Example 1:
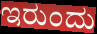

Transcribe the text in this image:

ಇರುಂದು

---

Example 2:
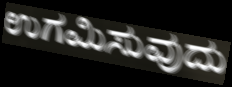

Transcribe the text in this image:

ಉಗಮಿಸುವುದು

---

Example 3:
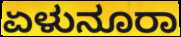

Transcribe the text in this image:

ಏಳುನೂರಾ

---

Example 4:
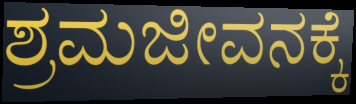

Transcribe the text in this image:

ಶ್ರಮಜೀವನಕ್ಕೆ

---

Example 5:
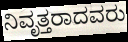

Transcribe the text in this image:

ನಿವೃತ್ತರಾದವರು